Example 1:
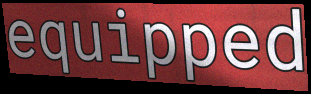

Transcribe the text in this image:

equipped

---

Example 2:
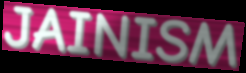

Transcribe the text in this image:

JAINISM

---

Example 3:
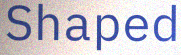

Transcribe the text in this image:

Shaped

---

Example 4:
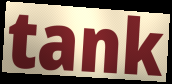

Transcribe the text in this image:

tank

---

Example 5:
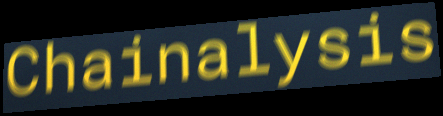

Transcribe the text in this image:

Chainalysis